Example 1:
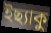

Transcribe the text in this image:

ইছ্যাকু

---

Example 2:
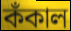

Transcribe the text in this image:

কঁকাল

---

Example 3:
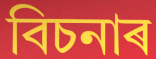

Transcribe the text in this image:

বিচনাৰ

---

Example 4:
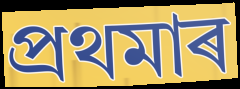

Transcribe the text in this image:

প্ৰথমাৰ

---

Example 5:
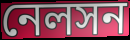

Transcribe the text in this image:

নেলসন